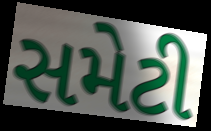
સમેટી